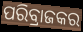
ପରିବ୍ରାଜକର